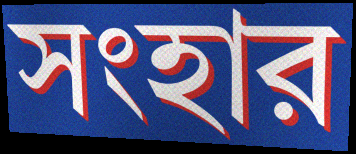
সংহার